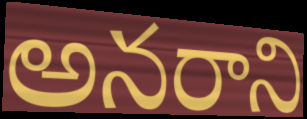
అనరాని